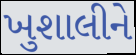
ખુશાલીને